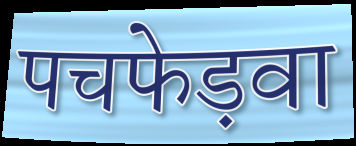
पचफेड़वा